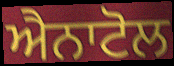
ਐਨਾਟੋਲ